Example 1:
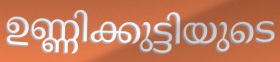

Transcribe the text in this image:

ഉണ്ണിക്കുട്ടിയുടെ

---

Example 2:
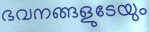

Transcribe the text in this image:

ഭവനങ്ങളുടേയും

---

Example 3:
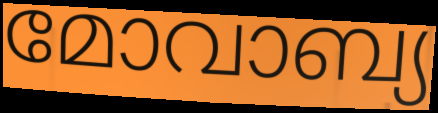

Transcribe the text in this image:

മോവാബ്യ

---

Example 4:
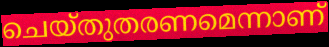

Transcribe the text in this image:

ചെയ്തുതരണമെന്നാണ്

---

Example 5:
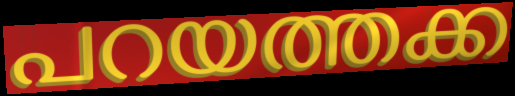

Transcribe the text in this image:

പറയത്തക്ക